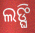
ଲଙ୍ଘି